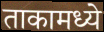
ताकामध्ये